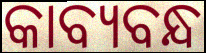
କାବ୍ୟବନ୍ଧ